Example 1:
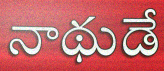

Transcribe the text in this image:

నాథుడే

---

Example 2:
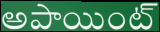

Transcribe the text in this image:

అపాయింట్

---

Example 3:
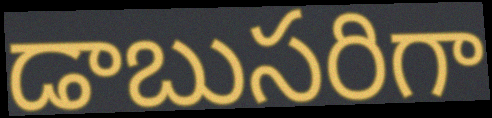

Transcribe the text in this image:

డాబుసరిగా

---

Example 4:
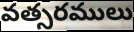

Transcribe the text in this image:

వత్సరములు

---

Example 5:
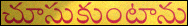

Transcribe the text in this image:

చూసుకుంటాను